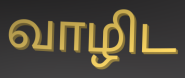
வாழிட